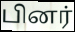
பினர்